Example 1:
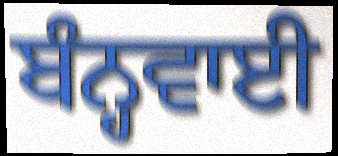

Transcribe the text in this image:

ਬੰਨ੍ਹਵਾਈ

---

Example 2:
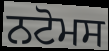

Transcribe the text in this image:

ਨਟੋਮਸ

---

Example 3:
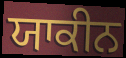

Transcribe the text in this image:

ਯਾਕੀਨ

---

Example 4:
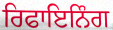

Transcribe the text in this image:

ਰਿਫਾਇਨਿੰਗ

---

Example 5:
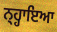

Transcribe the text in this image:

ਨ੍ਹ੍ਹਾਇਆ